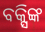
ବକ୍ସିଙ୍କ